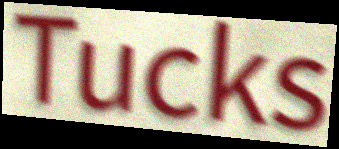
Tucks